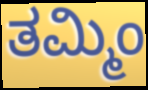
ತಮ್ಮಿಂ